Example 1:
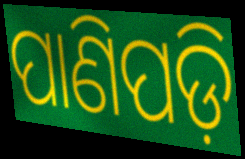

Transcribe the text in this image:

ପାଣିପଡ଼ି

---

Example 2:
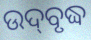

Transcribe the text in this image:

ଉଦ୍‌ବୃଦ୍ଧ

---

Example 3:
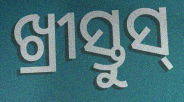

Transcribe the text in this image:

ଖ୍ରୀସ୍ତୁସ୍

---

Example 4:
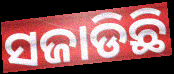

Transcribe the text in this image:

ସଜାଡିଛି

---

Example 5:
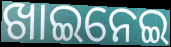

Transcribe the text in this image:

ଖାଇନେଇ